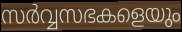
സർവ്വസഭകളെയും